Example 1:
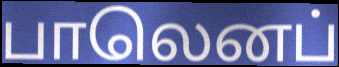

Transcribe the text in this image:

பாலெனப்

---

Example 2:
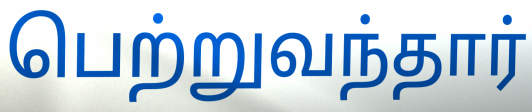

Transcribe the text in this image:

பெற்றுவந்தார்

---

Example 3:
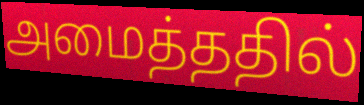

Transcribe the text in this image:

அமைத்ததில்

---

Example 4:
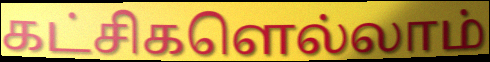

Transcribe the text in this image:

கட்சிகளெல்லாம்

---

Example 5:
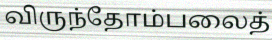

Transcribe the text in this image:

விருந்தோம்பலைத்